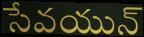
సేవయున్